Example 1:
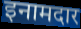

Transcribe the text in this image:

इनामदार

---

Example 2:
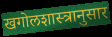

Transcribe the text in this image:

खगोलशास्त्रानुसार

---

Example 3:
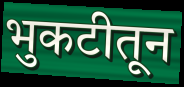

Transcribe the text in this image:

भुकटीतून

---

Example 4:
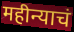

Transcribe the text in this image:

महीन्याचं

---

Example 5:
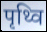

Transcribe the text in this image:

पृथ्वि